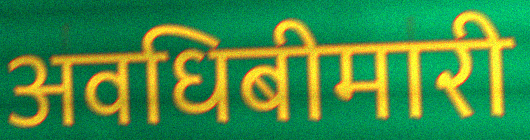
अवधिबीमारी